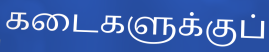
கடைகளுக்குப்